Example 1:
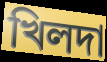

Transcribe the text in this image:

খিলদা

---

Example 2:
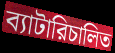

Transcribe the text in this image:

ব্যাটারিচালিত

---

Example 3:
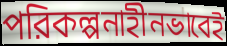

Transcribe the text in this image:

পরিকল্পনাহীনভাবেই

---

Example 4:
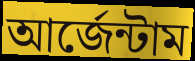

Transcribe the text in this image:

আর্জেন্টাম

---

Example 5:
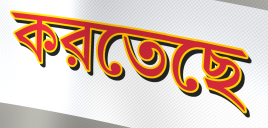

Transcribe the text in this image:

করতেছে